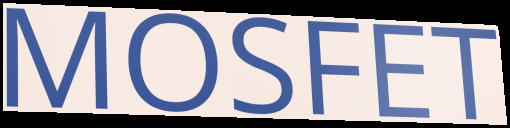
MOSFET